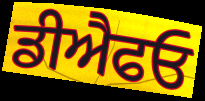
ਡੀਐਫਓ